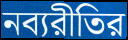
নব্যরীতির